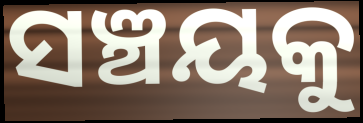
ସଞ୍ଚୟକୁ